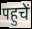
पहुचें